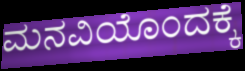
ಮನವಿಯೊಂದಕ್ಕೆ